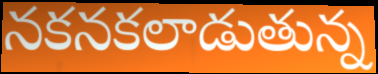
నకనకలాడుతున్న